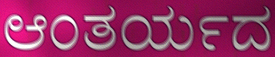
ಆಂತರ್ಯದ